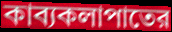
কাব্যকলাপাতের